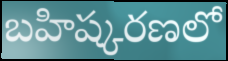
బహిష్కరణలో